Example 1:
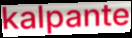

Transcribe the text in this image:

kalpante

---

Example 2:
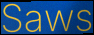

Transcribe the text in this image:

Saws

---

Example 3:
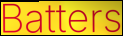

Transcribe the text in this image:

Batters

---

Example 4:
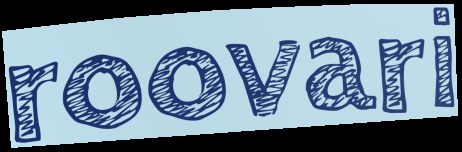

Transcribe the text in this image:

roovari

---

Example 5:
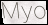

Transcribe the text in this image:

Myo